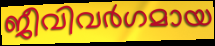
ജീവിവർഗമായ